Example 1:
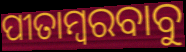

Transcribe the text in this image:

ପୀତାମ୍ବରବାବୁ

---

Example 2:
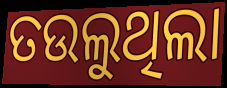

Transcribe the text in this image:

ତଉଲୁଥିଲା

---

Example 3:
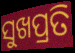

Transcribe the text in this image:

ସୁଖପ୍ରତି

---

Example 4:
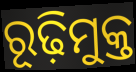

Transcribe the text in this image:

ରୂଢ଼ିମୁକ୍ତ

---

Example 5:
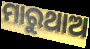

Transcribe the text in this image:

ମାରୁଥାଅ